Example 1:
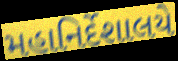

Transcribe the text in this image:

મહાનિર્દેશાલયે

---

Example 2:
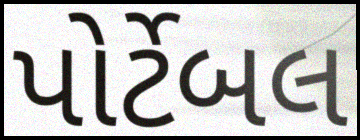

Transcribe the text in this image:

પોર્ટેબલ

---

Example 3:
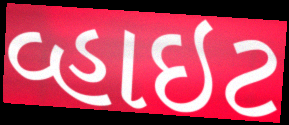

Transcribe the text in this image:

વ્હાઇટ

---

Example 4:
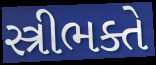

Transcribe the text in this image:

સ્ત્રીભક્તે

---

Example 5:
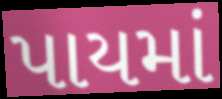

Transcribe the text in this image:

પાયમાં